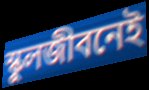
স্কুলজীবনেই